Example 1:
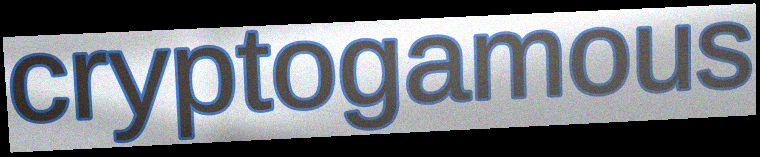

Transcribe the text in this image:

cryptogamous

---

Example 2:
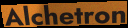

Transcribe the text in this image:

Alchetron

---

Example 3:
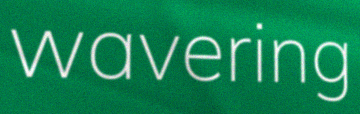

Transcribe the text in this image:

wavering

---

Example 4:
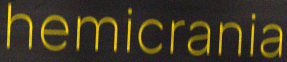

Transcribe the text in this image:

hemicrania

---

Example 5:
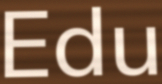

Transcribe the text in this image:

Edu